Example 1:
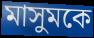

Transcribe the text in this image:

মাসুমকে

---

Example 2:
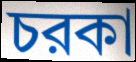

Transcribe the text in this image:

চরকা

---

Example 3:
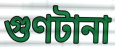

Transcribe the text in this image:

গুণটানা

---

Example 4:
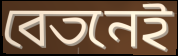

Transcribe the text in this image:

বেতনেই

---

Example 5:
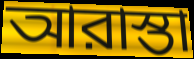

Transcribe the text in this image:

আরাস্তা